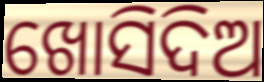
ଖୋସିଦିଅ